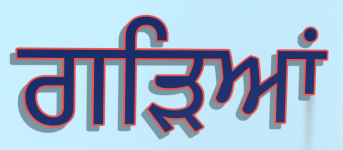
ਗੜਿਆਂ